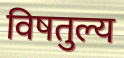
विषतुल्य